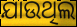
ଯାଉଥିଲ